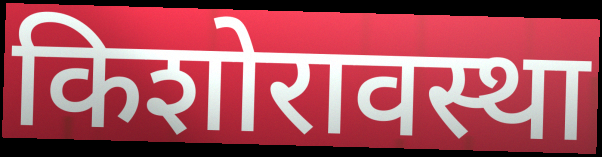
किशोरावस्था